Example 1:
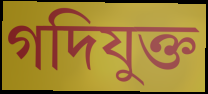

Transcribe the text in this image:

গদিযুক্ত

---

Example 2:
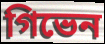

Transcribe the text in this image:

গিভেন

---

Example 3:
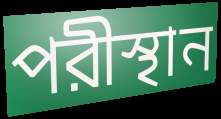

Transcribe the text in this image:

পরীস্থান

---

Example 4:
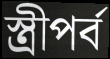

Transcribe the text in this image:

স্ত্রীপর্ব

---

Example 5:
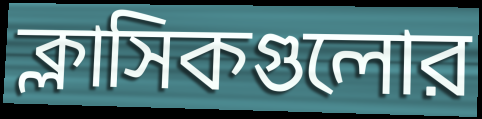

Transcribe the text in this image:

ক্লাসিকগুলোর